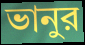
ভানুর